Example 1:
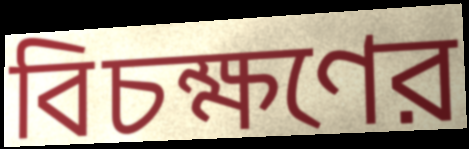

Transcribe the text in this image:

বিচক্ষণের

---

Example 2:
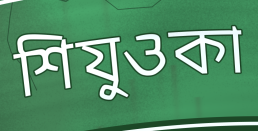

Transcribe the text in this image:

শিযুওকা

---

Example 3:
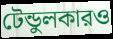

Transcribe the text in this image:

টেন্ডুলকারও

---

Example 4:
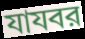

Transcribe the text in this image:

যাযবর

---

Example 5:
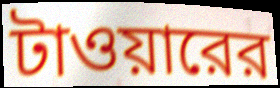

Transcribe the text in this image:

টাওয়ারের